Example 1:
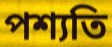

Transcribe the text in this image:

পশ্যতি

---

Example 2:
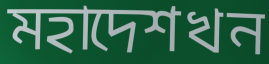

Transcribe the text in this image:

মহাদেশখন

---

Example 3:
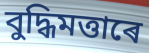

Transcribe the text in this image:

বুদ্ধিমত্তাৰে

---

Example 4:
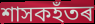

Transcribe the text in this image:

শাসকহঁতৰ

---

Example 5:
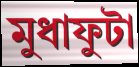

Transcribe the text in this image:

মুধাফুটা